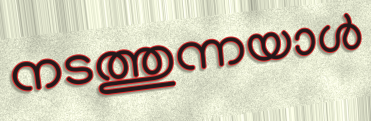
നടത്തുന്നയാൾ